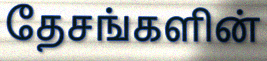
தேசங்களின்